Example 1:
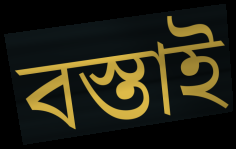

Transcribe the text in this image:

বস্তাই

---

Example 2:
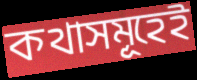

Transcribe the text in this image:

কথাসমূহেই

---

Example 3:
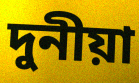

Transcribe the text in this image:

দুনীয়া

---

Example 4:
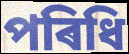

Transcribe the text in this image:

পৰিধি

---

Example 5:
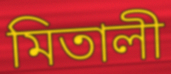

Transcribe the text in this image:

মিতালী